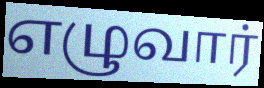
எழுவார்